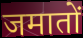
जमातों